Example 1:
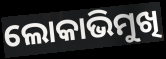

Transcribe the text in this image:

ଲୋକାଭିମୁଖି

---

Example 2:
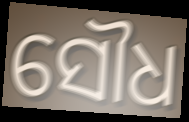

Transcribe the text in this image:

ସୌଧ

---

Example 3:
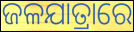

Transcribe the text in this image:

ଜଳଯାତ୍ରାରେ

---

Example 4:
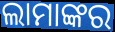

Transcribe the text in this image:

ଲାମାଙ୍କର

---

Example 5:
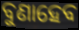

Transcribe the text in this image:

ବୁଣାହେବ